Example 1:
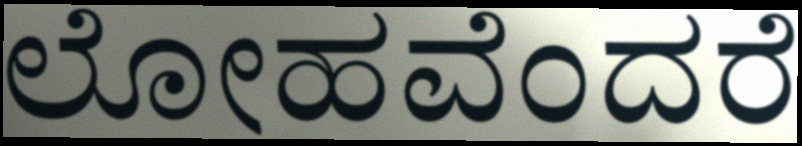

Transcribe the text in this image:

ಲೋಹವೆಂದರೆ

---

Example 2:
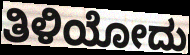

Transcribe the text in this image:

ತಿಳಿಯೋದು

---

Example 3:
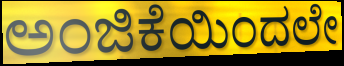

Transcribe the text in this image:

ಅಂಜಿಕೆಯಿಂದಲೇ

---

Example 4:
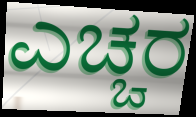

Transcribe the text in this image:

ಎಚ್ಚರ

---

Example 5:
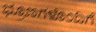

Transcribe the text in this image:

ಭ್ರೂಣಗಳೊಂದಿಗೆ